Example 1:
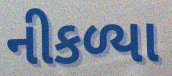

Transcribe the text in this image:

નીકળ્યા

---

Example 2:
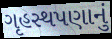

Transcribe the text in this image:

ગૃહસ્થપણાનું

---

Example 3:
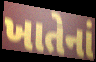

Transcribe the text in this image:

ખાતેનાં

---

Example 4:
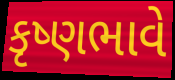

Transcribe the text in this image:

કૃષ્ણભાવે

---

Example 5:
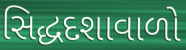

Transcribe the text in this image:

સિદ્ધદશાવાળો